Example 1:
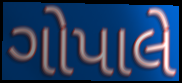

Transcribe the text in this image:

ગોપાલે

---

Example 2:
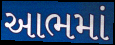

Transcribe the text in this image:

આભમાં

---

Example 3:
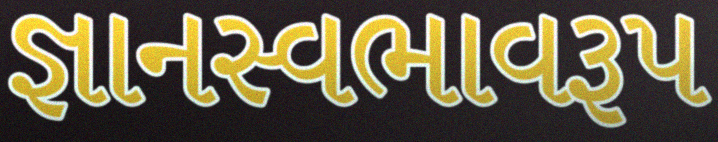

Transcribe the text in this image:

જ્ઞાનસ્વભાવરૂપ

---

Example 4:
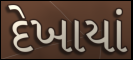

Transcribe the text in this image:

દેખાયાં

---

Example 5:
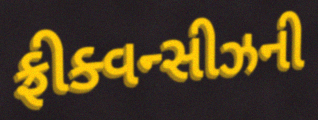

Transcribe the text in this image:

ફ્રીક્વન્સીઝની